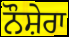
ਨੌਸ਼ੇਰਾ